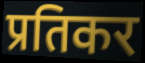
प्रतिकर